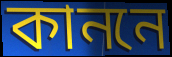
কাননে